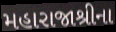
મહારાજાશ્રીના